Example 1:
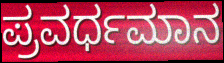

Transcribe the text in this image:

ಪ್ರವರ್ಧಮಾನ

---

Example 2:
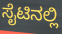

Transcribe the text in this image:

ಸೈಟಿನಲ್ಲಿ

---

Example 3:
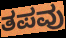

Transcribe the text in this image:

ತಪವು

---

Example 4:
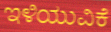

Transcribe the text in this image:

ಇಳಿಯುವಿಕೆ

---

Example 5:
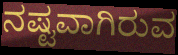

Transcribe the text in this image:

ನಷ್ಟವಾಗಿರುವ